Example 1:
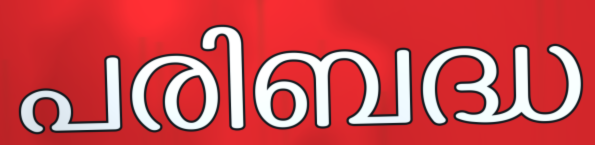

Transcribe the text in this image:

പരിബദ്ധ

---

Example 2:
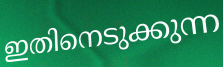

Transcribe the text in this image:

ഇതിനെടുക്കുന്ന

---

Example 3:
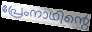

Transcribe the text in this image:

പ്രേംനാഥിന്റെ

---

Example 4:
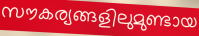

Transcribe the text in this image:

സൗകര്യങ്ങളിലുമുണ്ടായ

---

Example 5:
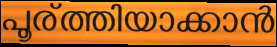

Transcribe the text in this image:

പൂര്ത്തിയാക്കാൻ